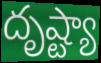
దృష్ట్యా